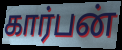
கார்பன்